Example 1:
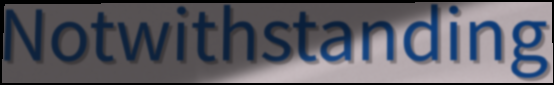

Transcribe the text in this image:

Notwithstanding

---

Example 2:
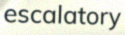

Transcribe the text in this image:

escalatory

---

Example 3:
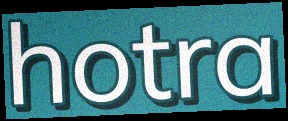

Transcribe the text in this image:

hotra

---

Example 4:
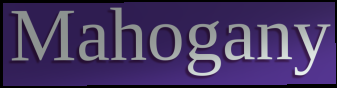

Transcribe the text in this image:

Mahogany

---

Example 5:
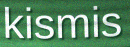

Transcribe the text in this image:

kismis